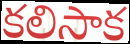
కలిసాక